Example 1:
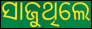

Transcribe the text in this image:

ସାଜୁଥିଲେ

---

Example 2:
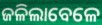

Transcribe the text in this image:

ଜଳିଲାବେଳେ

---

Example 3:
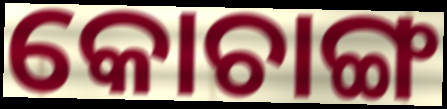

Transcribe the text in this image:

କୋଚାଙ୍ଗ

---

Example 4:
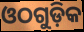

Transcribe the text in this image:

ଓଠଗୁଡ଼ିକ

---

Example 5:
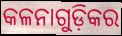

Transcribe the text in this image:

କଳନାଗୁଡ଼ିକର